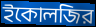
ইকোলজির